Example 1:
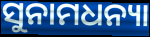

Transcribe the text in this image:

ସୁନାମଧନ୍ୟା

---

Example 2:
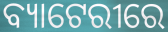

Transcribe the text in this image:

ବ୍ୟାଟେରୀରେ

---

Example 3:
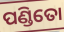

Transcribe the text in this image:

ପଣ୍ଡିତୋ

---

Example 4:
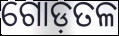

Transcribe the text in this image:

ଗୋଡ଼ତଳ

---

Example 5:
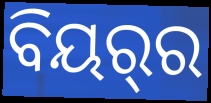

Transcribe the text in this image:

ବିୟର୍‌ର